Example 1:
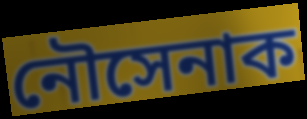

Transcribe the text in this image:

নৌসেনাক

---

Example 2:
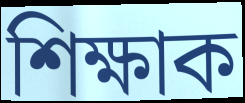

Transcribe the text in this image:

শিক্ষাক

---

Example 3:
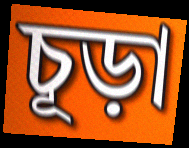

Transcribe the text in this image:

চূড়া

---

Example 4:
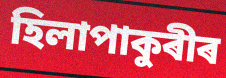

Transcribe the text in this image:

হিলাপাকুৰীৰ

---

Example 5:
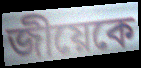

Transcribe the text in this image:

জীয়েকে